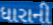
ધારાની